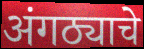
अंगठ्याचे